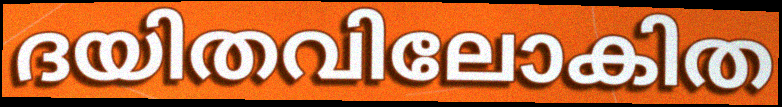
ദയിതവിലോകിത